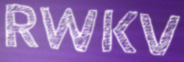
RWKV